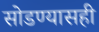
सोडण्यासही